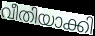
വീതിയാക്കി